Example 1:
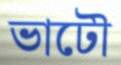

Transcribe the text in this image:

ভাটৌ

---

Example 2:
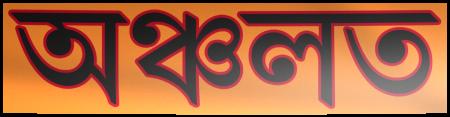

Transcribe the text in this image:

অঞ্চলত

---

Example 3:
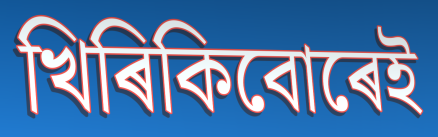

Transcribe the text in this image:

খিৰিকিবোৰেই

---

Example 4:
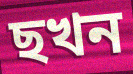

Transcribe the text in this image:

ছখন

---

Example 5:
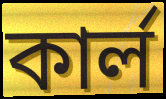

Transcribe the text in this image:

কাৰ্ল